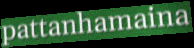
pattanhamaina